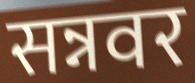
सन्नवर